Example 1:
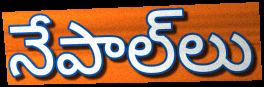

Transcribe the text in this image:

నేపాల్‌లు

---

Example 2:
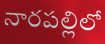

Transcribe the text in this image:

నారపల్లిలో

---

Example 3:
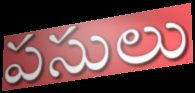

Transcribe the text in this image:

పసులు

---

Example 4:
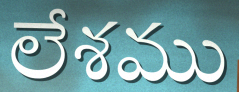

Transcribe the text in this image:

లేశము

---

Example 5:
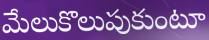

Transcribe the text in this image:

మేలుకొలుపుకుంటూ